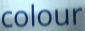
colour